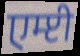
एम्प्टी